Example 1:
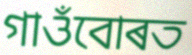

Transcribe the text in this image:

গাওঁবোৰত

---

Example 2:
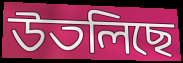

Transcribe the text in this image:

উতলিছে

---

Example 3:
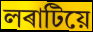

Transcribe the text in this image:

লৰাটিয়ে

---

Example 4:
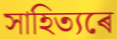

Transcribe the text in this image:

সাহিত্যৰে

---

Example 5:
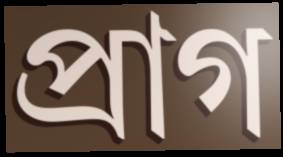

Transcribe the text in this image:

প্ৰাগ